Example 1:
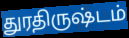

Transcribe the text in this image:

துரதிருஷ்டம்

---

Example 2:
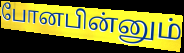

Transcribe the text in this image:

போனபின்னும்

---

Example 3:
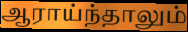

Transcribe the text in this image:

ஆராய்ந்தாலும்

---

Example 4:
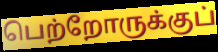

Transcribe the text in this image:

பெற்றோருக்குப்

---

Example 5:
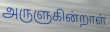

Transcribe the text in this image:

அருளுகின்றாள்